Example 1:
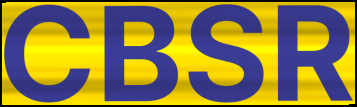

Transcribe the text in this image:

CBSR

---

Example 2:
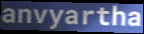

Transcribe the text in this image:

anvyartha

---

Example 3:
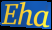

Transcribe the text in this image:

Eha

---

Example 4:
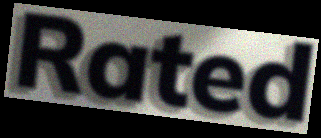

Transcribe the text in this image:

Rated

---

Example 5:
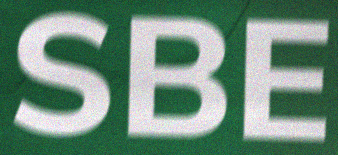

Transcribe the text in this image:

SBE